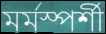
মৰ্মস্পৰ্শী